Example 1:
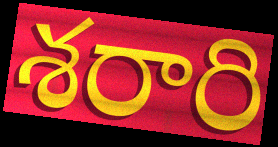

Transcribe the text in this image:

శరారి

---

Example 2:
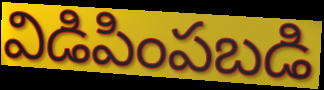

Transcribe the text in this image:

విడిపింపబడి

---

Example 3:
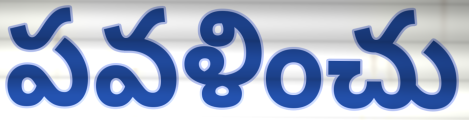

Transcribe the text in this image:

పవళించు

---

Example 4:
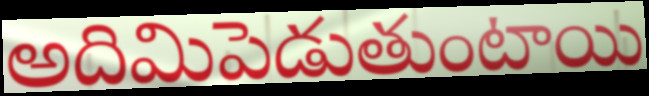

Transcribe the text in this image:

అదిమిపెడుతుంటాయి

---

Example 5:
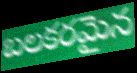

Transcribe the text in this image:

బలకరమైన